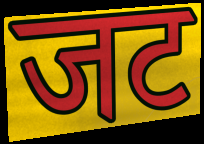
जट